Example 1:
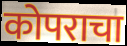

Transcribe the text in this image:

कोपराचा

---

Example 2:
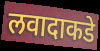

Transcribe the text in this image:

लवादाकडे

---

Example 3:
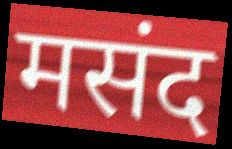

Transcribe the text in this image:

मसंद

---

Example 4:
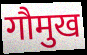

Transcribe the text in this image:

गौमुख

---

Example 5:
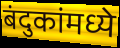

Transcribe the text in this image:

बंदुकांमध्ये